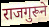
राजगुरूने